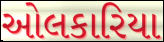
ઓલકારિયા